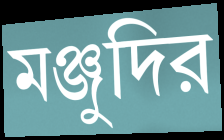
মঞ্জুদির